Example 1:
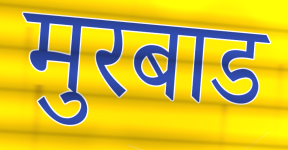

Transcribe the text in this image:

मुरबाड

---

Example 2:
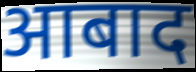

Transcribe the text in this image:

आबाद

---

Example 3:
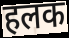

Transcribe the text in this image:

हलक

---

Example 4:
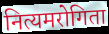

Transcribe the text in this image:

नित्यमरोगिता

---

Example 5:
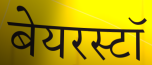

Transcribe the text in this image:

बेयरस्टॉ